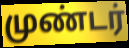
முண்டர்